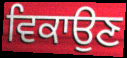
ਵਿਕਾਉਣ